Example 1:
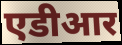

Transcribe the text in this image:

एडीआर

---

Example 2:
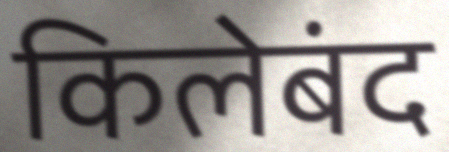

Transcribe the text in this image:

किलेबंद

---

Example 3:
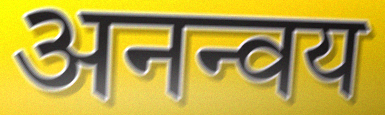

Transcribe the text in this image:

अनन्वय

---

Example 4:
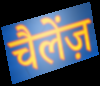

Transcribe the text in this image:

चैलेंज़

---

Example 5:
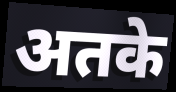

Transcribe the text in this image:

अतके